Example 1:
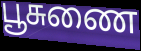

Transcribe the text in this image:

பூசுணை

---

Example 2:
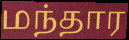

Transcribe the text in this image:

மந்தார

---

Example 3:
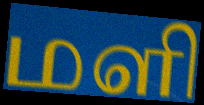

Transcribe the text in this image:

மளி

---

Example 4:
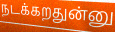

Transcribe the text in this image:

நடக்கறதுன்னு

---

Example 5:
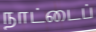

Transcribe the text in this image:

நாட்டைப்